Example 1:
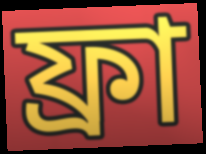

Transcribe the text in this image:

ফ্ৰা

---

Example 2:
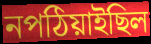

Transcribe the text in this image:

নপঠিয়াইছিল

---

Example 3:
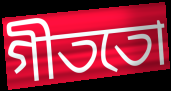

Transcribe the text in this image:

গীততো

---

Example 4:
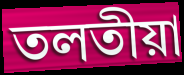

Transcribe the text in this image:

তলতীয়া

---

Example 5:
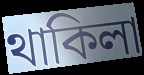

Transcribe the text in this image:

থাকিলা